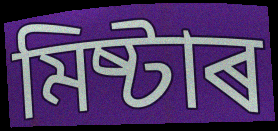
মিষ্টাৰ